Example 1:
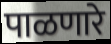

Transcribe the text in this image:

पाळणारे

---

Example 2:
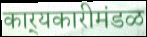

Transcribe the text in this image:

कार्यकारीमंडळ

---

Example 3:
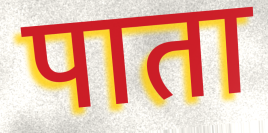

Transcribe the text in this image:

पाता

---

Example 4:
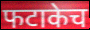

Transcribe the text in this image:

फटाकेच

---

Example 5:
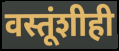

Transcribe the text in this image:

वस्तूंशीही